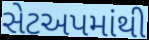
સેટઅપમાંથી